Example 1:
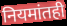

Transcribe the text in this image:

नियमांतही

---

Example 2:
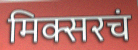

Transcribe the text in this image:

मिक्सरचं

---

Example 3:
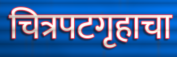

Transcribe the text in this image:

चित्रपटगृहाचा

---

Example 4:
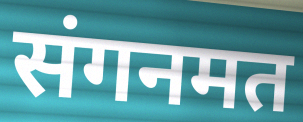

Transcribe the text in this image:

संगनमत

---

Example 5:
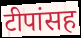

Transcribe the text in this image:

टीपांसह